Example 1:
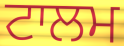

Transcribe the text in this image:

ਟਾਲਮ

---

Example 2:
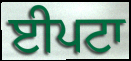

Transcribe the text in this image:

ਈਪਟਾ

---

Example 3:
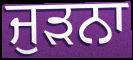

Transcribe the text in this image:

ਜੁੜਨਾ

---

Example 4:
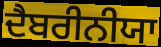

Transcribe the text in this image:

ਦੈਬਰੀਨੀਯਾ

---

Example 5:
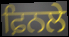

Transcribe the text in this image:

ਫ਼ਿਨਲੇ